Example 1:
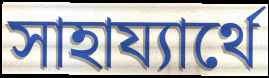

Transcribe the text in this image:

সাহায্যাৰ্থে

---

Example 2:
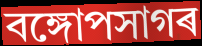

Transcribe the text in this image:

বঙ্গোপসাগৰ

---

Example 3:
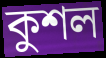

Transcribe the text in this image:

কুশল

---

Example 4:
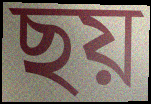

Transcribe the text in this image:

ছয়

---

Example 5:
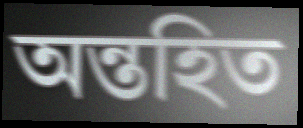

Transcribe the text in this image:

অন্তহিত